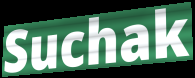
Suchak